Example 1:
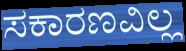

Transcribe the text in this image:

ಸಕಾರಣವಿಲ್ಲ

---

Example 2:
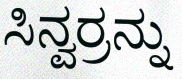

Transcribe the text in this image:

ಸಿನ್ವರ್ರನ್ನು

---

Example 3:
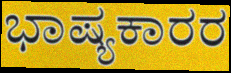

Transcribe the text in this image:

ಭಾಷ್ಯಕಾರರ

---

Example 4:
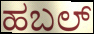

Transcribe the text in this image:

ಹಬಲ್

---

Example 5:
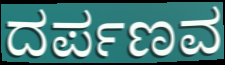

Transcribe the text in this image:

ದರ್ಪಣವ